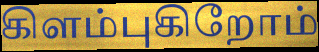
கிளம்புகிறோம்